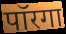
पॉरगा